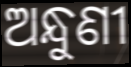
ଅନ୍ଧୁଣୀ